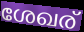
ശേഖര്